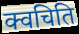
क्वचिति